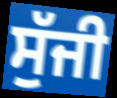
ਸੁੱਜੀ